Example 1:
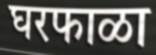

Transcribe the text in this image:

घरफाळा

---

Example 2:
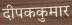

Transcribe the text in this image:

दीपककुमार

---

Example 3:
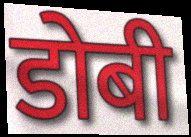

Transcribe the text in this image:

डोबी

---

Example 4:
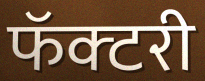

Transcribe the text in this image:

फॅक्‍टरी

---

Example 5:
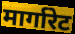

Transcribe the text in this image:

मार्गारेट